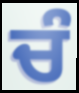
ਚੰ